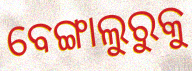
ବେଙ୍ଗାଲୁରୁକୁ